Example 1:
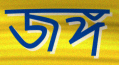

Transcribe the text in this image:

জঙ্গ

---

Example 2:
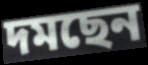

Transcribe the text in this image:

দমছেন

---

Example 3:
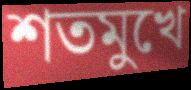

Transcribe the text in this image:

শতমুখে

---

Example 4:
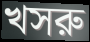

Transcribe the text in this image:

খসরু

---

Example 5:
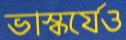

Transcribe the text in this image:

ভাস্কর্যেও